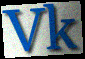
Vk